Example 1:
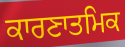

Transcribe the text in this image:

ਕਾਰਣਾਤਮਿਕ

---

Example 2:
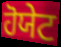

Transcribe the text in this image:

ਹੋਯੇਟ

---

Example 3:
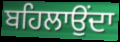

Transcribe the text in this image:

ਬਹਿਲਾਉਂਦਾ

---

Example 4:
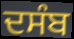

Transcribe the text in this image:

ਦਸੰਬ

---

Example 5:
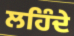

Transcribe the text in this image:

ਲਹਿੰਦੇ